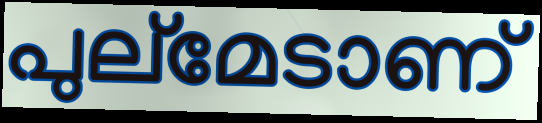
പുല്മേടാണ്